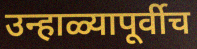
उन्हाळ्यापूर्वीच